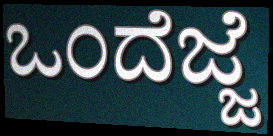
ಒಂದೆಜ್ಜೆ